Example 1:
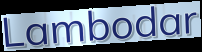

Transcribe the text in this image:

Lambodar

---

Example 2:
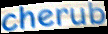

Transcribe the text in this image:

cherub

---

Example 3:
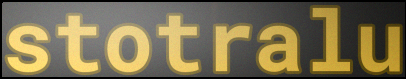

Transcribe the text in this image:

stotralu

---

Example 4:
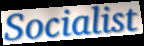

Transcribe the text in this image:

Socialist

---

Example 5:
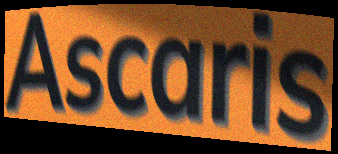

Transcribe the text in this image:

Ascaris